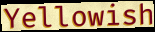
Yellowish